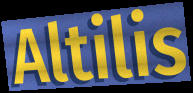
Altilis